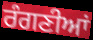
ਰੰਗਣੀਆਂ